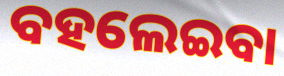
ବହଲେଇବା